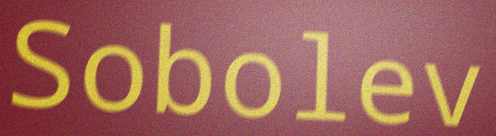
Sobolev